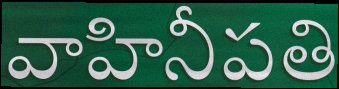
వాహినీపతి